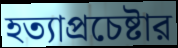
হত্যাপ্রচেষ্টার